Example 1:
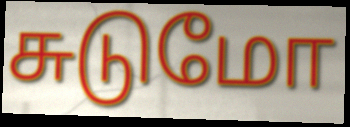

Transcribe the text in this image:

சுடுமோ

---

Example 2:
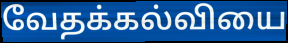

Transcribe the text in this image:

வேதக்கல்வியை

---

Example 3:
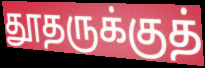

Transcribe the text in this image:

தூதருக்குத்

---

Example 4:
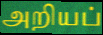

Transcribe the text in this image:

அறியப்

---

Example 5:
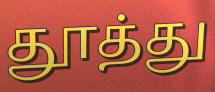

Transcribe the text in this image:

தூத்து